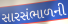
સારસંભાળની